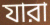
যারা